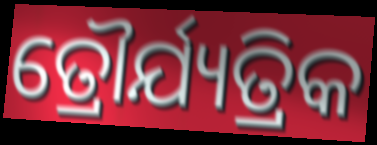
ତ୍ରୌର୍ଯ୍ୟତ୍ରିକ